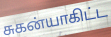
சுகன்யாகிட்ட